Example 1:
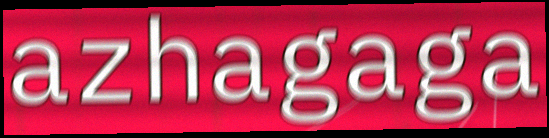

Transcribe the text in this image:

azhagaga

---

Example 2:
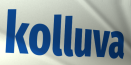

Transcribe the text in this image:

kolluva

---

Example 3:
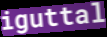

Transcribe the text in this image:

iguttal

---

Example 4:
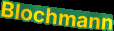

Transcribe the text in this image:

Blochmann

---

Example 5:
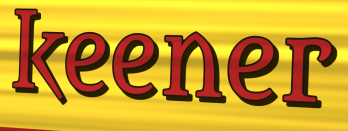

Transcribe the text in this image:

keener